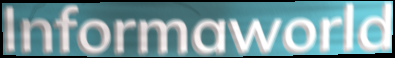
Informaworld